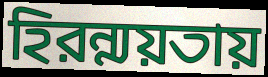
হিরন্ময়তায়